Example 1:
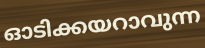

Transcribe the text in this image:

ഓടിക്കയറാവുന്ന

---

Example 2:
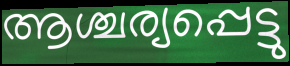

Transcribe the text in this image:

ആശ്ചര്യപ്പെട്ടു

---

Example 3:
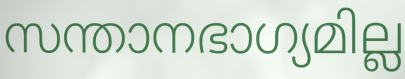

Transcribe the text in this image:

സന്താനഭാഗ്യമില്ല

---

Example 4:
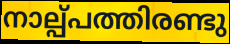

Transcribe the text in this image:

നാല്പ്പത്തിരണ്ടു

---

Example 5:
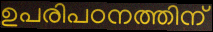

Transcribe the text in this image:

ഉപരിപഠനത്തിന്